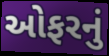
ઓફરનું